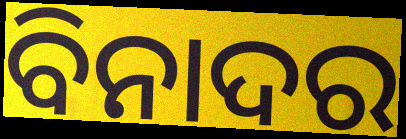
ବିନାଦର